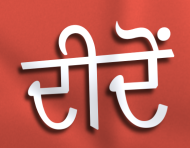
ਦੀਦੋਂ